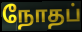
நோதப்